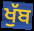
ਖੁੱਬ